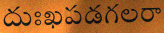
దుఃఖపడగలరా